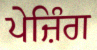
ਪੇਜ਼ਿੰਗ